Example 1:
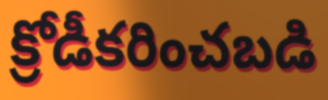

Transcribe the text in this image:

క్రోడీకరించబడి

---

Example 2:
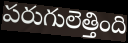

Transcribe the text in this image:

పరుగులెత్తింది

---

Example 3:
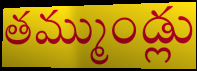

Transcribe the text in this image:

తమ్ముండ్లు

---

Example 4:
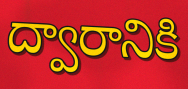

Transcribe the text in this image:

ద్వారానికి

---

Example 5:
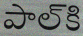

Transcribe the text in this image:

పాల్‌కి